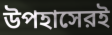
উপহাসেরই